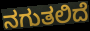
ನಗುತಲಿದೆ